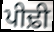
ਪੀਢ਼ੀ